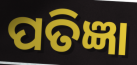
ପତିଜ୍ଞା